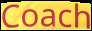
Coach